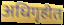
अधिगृहीत